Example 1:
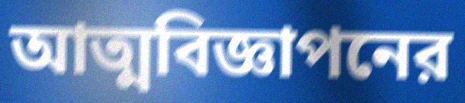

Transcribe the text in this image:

আত্মবিজ্ঞাপনের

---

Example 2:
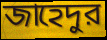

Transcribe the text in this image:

জাহেদুর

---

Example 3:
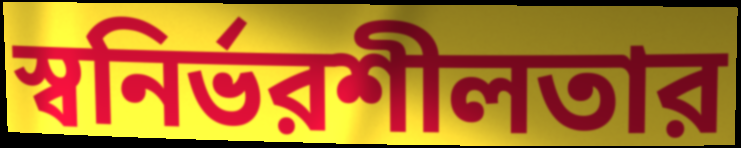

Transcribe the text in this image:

স্বনির্ভরশীলতার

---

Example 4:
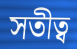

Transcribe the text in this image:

সতীত্ব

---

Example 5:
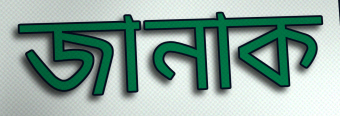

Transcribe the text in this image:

জানাক